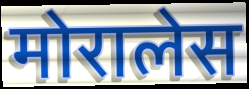
मोरालेस